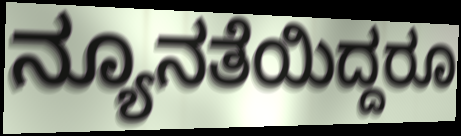
ನ್ಯೂನತೆಯಿದ್ದರೂ